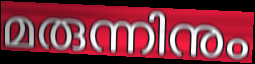
മരുന്നിനും